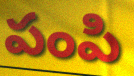
పంపి